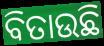
ବିତାଉଛି